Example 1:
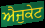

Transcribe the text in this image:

ਐਜੁਕੇਟ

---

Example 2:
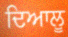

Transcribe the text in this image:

ਦਿਆਲੂ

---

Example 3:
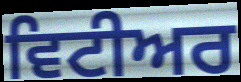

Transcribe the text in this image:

ਵਿਟੀਅਰ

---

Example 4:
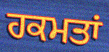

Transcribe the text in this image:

ਹਕਮਤਾਂ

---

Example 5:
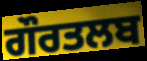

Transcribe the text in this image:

ਗੌਰਤਲਬ